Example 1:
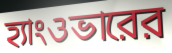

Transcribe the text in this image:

হ্যাংওভারের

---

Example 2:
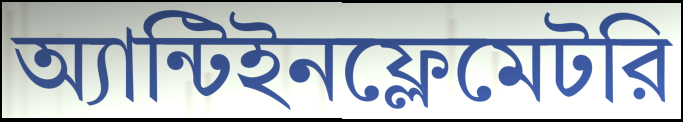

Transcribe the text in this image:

অ্যান্টিইনফ্লেমেটরি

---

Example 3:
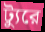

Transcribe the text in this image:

ট্যুরে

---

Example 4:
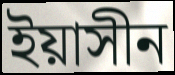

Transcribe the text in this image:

ইয়াসীন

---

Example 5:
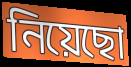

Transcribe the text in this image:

নিয়েছো